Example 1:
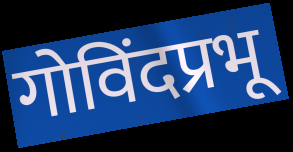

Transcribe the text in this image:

गोविंदप्रभू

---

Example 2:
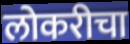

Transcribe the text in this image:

लोकरीचा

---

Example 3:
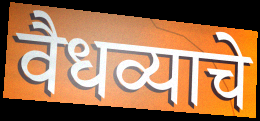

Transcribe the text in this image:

वैधव्याचे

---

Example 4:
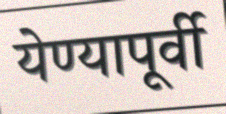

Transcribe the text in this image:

येण्यापूर्वी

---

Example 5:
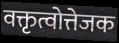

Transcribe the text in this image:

वक्तृत्वोत्तेजक